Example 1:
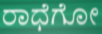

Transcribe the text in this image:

ರಾಧೆಗೋ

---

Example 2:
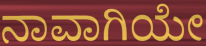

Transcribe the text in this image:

ನಾವಾಗಿಯೇ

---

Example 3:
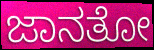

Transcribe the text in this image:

ಜಾನತೋ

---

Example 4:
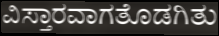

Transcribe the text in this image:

ವಿಸ್ತಾರವಾಗತೊಡಗಿತು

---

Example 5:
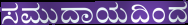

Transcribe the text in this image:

ಸಮುದಾಯದಿಂದ